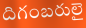
దిగంబరులై